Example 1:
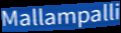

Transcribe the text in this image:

Mallampalli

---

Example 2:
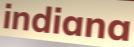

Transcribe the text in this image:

indiana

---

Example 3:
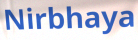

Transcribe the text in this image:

Nirbhaya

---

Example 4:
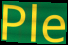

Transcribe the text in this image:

Ple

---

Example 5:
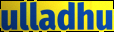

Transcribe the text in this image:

ulladhu